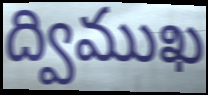
ద్విముఖ